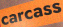
carcass